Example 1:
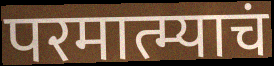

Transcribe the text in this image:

परमात्म्याचं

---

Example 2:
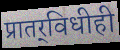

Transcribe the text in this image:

प्रातर्विधीही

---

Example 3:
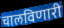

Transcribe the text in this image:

चालविणारी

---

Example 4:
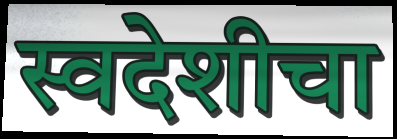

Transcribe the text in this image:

स्वदेशीचा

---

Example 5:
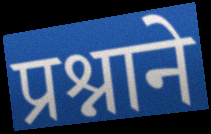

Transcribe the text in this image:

प्रश्नाने